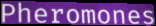
Pheromones